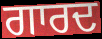
ਗਾਰਦ